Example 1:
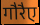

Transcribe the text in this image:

गौरैए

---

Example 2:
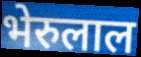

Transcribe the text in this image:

भेरुलाल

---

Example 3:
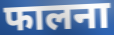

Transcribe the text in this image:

फालना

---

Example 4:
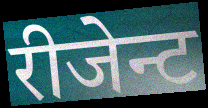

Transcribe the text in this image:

रीजेन्ट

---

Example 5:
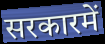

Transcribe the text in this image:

सरकारमें